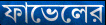
ফাভেলের